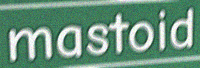
mastoid